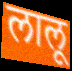
लालू